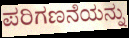
ಪರಿಗಣನೆಯನ್ನು